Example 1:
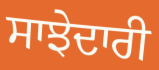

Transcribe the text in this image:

ਸਾਝੇਦਾਰੀ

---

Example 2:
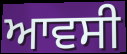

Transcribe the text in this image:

ਆਵਸੀ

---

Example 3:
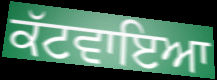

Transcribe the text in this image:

ਕੱਟਵਾਇਆ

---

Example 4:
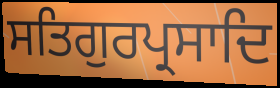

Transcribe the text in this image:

ਸਤਿਗੁਰਪ੍ਰਸਾਦਿ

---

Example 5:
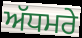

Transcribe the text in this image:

ਅੱਧਮਰੇ